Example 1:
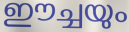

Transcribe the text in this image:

ഈച്ചയും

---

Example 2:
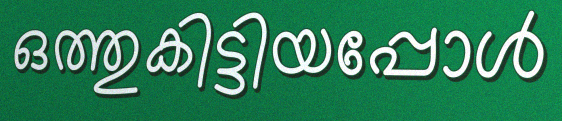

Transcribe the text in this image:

ഒത്തുകിട്ടിയപ്പോൾ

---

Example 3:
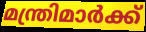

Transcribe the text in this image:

മന്ത്രിമാർക്ക്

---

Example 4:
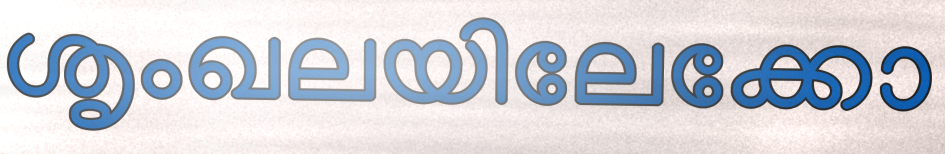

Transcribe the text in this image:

ശൃംഖലയിലേക്കോ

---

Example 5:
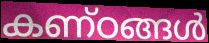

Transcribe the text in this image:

കണ്ഠങ്ങൾ